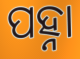
ପହ୍ନା